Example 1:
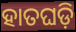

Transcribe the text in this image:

ହାତଘଡ଼ି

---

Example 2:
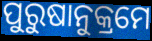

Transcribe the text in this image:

ପୁରୁଷାନୁକ୍ରମେ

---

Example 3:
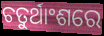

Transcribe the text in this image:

ଚତୁର୍ଥାଂଶରେ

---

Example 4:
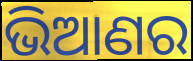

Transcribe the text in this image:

ଭିଆଣର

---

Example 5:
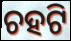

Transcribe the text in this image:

ଚହଟି